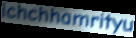
ichchhamrityu